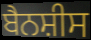
ਬੈਨਸ਼ੀਸ